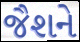
જૈશને